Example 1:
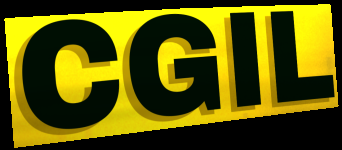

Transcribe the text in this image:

CGIL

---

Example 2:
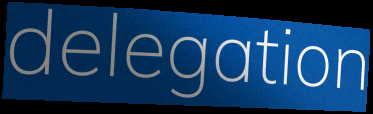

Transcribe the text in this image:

delegation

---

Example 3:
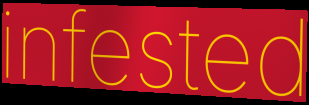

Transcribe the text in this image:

infested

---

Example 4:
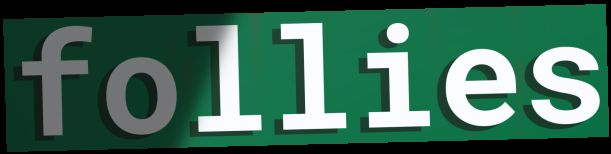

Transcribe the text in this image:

follies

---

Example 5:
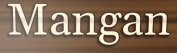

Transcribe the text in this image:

Mangan